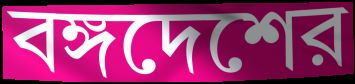
বঙ্গদেশের